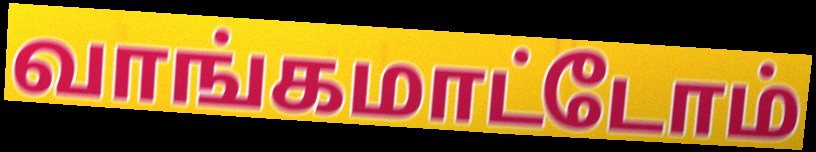
வாங்கமாட்டோம்